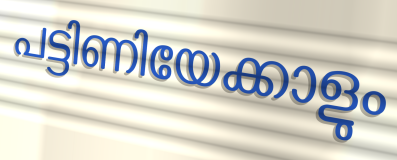
പട്ടിണിയേക്കാളും